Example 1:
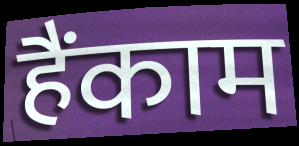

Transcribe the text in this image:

हैंकाम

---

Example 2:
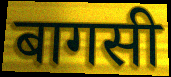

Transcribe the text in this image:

बागसी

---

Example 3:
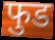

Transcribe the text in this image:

फुड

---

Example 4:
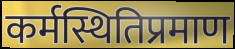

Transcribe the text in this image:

कर्मस्थितिप्रमाण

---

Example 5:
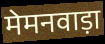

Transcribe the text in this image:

मेमनवाड़ा